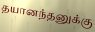
தயானந்தனுக்கு